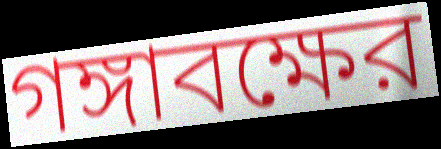
গঙ্গাবক্ষের